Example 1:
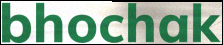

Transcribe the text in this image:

bhochak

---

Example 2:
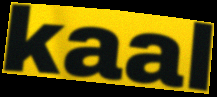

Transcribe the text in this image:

kaal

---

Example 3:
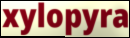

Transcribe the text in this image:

xylopyra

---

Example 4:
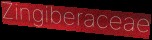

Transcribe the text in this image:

Zingiberaceae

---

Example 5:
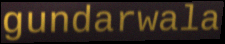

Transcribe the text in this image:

gundarwala